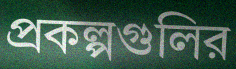
প্রকল্পগুলির